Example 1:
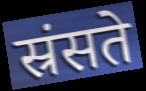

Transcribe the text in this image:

स्रंसते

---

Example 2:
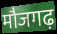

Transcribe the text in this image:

मौजगढ़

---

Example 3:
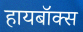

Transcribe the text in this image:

हायबॉक्स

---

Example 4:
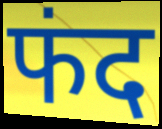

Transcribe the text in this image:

फंद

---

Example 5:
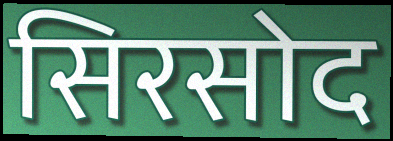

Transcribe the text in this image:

सिरसोद